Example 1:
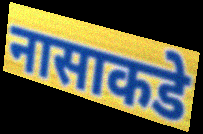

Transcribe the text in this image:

नासाकडे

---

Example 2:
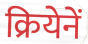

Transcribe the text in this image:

क्रियेनें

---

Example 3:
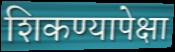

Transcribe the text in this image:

शिकण्यापेक्षा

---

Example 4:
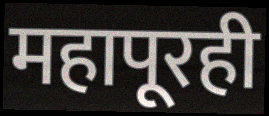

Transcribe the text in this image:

महापूरही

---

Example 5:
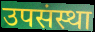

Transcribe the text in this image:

उपसंस्था